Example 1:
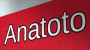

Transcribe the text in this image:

Anatoto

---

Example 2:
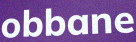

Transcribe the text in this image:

obbane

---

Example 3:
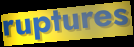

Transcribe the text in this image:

ruptures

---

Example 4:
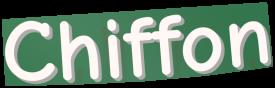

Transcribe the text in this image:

Chiffon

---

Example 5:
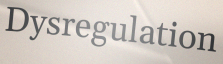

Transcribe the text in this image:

Dysregulation